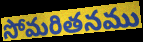
సోమరితనము